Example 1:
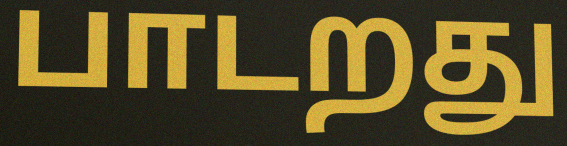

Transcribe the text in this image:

பாடறது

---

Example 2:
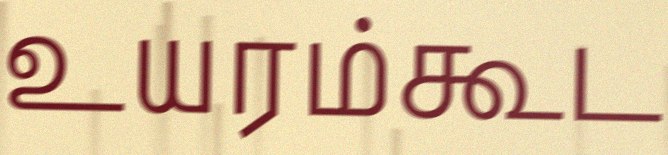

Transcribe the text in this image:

உயரம்கூட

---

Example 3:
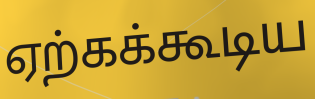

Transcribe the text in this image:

ஏற்கக்கூடிய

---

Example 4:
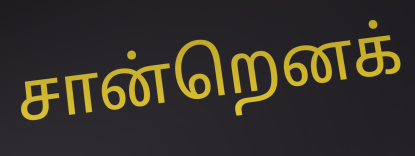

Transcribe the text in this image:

சான்றெனக்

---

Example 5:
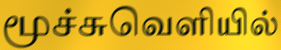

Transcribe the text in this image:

மூச்சுவெளியில்